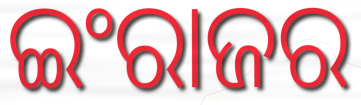
ଇଂରାଜର